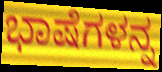
ಭಾಷೆಗಳನ್ನ